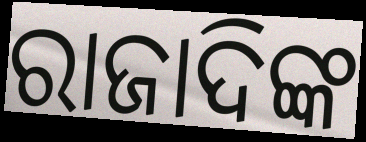
ରାଜାଦିଙ୍କ